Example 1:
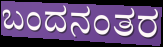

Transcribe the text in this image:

ಬಂದನಂತರ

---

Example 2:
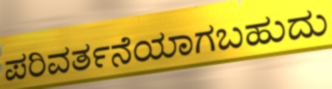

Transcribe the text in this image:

ಪರಿವರ್ತನೆಯಾಗಬಹುದು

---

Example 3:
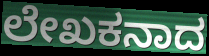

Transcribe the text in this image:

ಲೇಖಕನಾದ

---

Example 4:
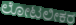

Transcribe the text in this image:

ಲೋಟಲೀಕರ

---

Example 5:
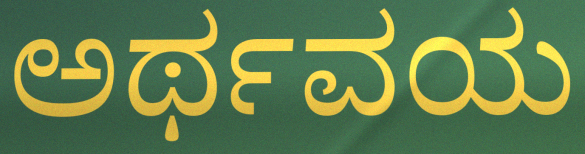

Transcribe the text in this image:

ಅರ್ಥವಯ